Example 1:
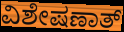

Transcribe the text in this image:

ವಿಶೇಷಣಾತ್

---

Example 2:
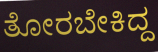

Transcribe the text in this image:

ತೋರಬೇಕಿದ್ದ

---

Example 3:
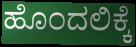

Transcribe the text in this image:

ಹೊಂದಲಿಕ್ಕೆ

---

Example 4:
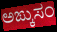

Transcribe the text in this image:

ಅಙ್ಕುಸಂ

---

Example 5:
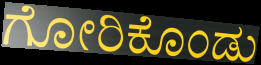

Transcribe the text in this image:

ಗೋರಿಕೊಂಡು